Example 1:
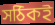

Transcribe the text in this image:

সঠিকই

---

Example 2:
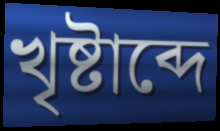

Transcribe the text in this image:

খৃষ্টাব্দে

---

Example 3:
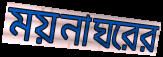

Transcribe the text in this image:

ময়নাঘরের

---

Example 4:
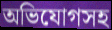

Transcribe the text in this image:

অভিযোগসহ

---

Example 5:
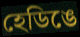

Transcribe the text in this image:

হেডিঙে